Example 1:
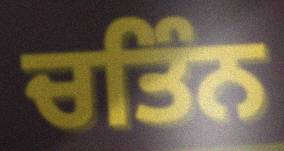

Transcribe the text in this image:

ਚਤਿੰਨ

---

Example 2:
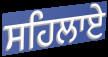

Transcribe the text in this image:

ਸਹਿਲਾਏ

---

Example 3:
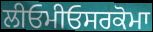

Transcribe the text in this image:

ਲੀਓਮੀਓਸਰਕੋਮਾ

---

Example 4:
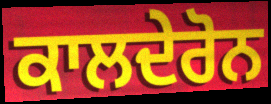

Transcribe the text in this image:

ਕਾਲਦੇਰੋਨ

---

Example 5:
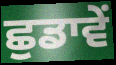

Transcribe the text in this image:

ਛੁਡਾਵੇਂ